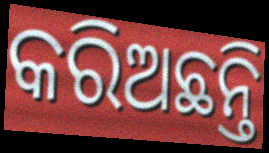
କରିଅଛନ୍ତି